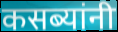
कसब्यांनी